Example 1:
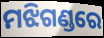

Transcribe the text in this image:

ମଝିଗଣ୍ଡରେ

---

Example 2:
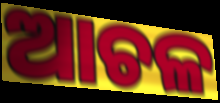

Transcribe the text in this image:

ଆଚଳ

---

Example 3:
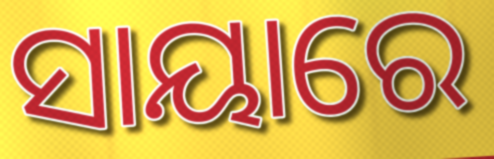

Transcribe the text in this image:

ସାୟାରେ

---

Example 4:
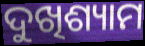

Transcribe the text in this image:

ଦୁଖିଶ୍ୟାମ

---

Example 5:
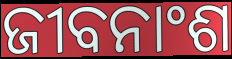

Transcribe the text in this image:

ଜୀବନାଂଶ